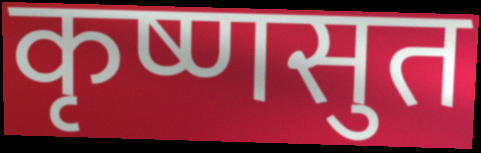
कृष्णसुत